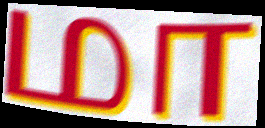
மா